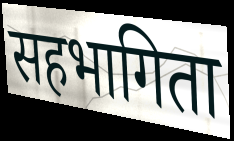
सहभागिता